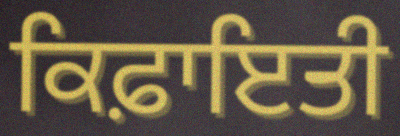
ਕਿਫ਼ਾਇਤੀ